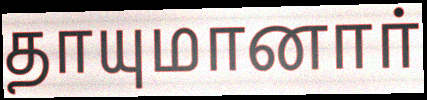
தாயுமானார்